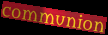
communion